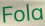
Fola